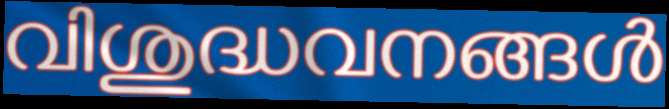
വിശുദ്ധവനങ്ങൾ